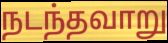
நடந்தவாறு